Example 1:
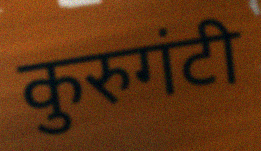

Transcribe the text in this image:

कुरुगंटी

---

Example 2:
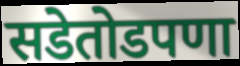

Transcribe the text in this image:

सडेतोडपणा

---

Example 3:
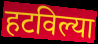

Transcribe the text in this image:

हटविल्या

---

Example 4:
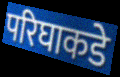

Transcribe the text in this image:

परिघाकडे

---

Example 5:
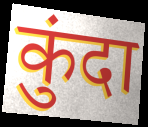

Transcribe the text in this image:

कुंदा